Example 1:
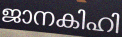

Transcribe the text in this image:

ജാനകിഹി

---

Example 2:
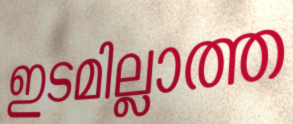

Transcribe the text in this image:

ഇടമില്ലാത്ത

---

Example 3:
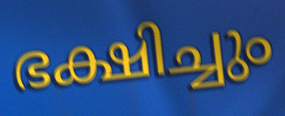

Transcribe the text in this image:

ഭക്ഷിച്ചും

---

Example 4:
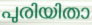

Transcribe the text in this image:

പുരിയിതാ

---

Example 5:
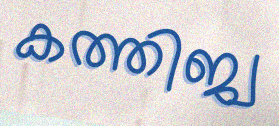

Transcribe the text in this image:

കത്തിജ്വ